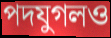
পদযুগলও